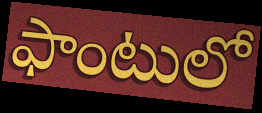
ఫాంటులో